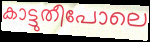
കാട്ടുതീപോലെ